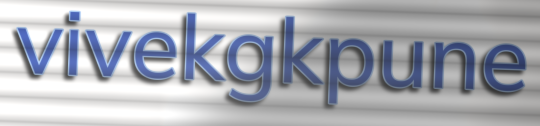
vivekgkpune